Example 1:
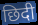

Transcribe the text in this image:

छिदी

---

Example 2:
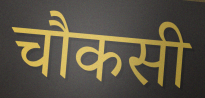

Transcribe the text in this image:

चौकसी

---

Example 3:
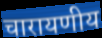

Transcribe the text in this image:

चारायणीय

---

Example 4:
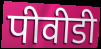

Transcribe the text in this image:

पीवीडी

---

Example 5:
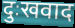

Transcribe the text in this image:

दुःखवाद